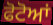
ਫੋਟੋਆਂ